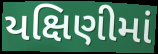
યક્ષિણીમાં